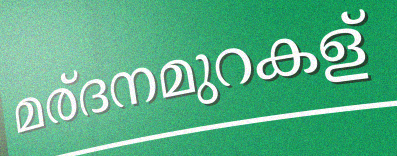
മര്ദനമുറകള്